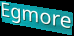
Egmore